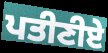
ਪਤੀਣੀਏ